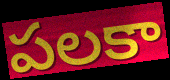
పలకా